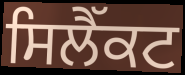
ਸਿਲੈੱਕਟ